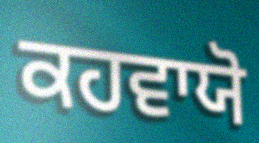
ਕਹਵਾਯੋ